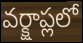
వర్క్షాప్లలో